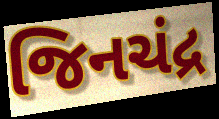
જિનચંદ્ર